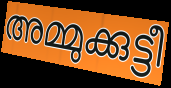
അമ്മുക്കുട്ടീ